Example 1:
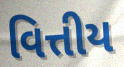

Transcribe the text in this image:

વિત્તીય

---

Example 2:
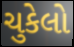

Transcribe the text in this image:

ચુકેલો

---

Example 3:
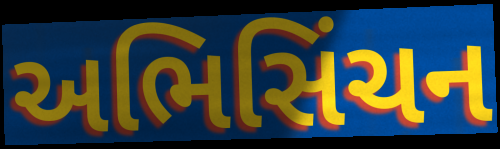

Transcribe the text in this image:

અભિસિંચન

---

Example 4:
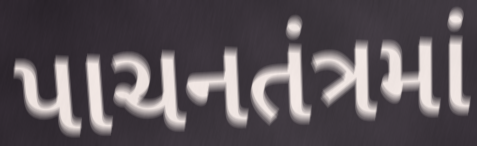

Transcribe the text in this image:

પાચનતંત્રમાં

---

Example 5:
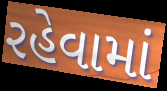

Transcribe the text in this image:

રહેવામાં